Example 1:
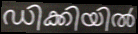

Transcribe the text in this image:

ഡിക്കിയിൽ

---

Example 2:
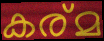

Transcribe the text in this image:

കര്മ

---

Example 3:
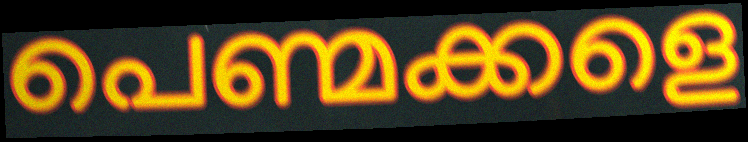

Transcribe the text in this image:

പെണ്മക്കളെ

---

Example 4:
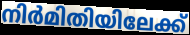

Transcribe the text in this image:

നിർമിതിയിലേക്ക്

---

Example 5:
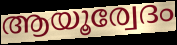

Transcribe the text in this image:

ആയൂര്വേദം